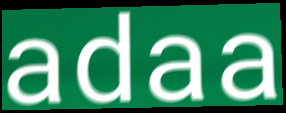
adaa